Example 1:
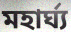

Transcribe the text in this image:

মহার্ঘ্য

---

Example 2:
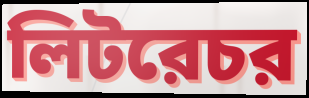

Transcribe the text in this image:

লিটরেচর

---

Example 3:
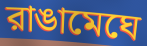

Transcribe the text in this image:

রাঙামেঘে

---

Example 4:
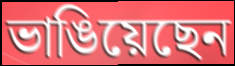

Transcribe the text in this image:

ভাঙিয়েছেন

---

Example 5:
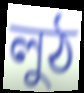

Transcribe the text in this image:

লুঠ